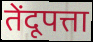
तेंदूपत्ता